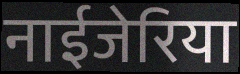
नाईजेरिया